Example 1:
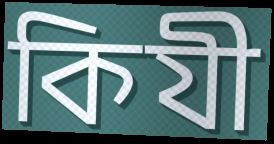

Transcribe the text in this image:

কিযী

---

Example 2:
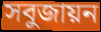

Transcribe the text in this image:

সবুজায়ন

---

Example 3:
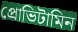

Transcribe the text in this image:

প্রোভিটামিন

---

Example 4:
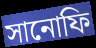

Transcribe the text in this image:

সানোফি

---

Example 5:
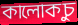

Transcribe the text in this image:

কালোকচু